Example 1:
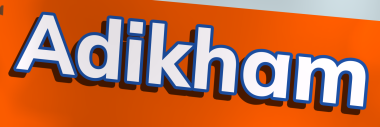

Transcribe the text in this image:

Adikham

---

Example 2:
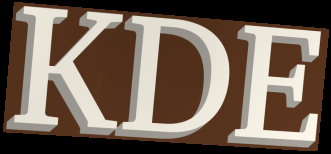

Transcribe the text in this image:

KDE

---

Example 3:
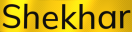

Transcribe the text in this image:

Shekhar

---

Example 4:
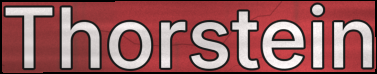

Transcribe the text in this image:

Thorstein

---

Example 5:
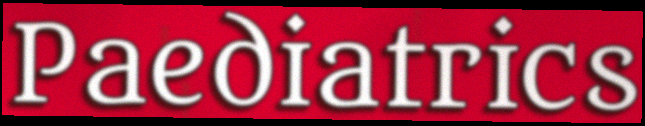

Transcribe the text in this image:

Paediatrics